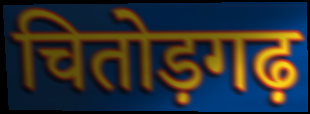
चितोड़गढ़